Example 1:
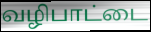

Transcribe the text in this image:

வழிபாட்டை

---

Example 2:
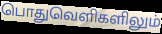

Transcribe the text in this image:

பொதுவெளிகளிலும்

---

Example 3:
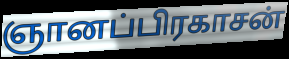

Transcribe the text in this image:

ஞானப்பிரகாசன்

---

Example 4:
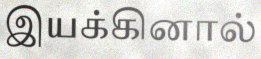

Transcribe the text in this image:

இயக்கினால்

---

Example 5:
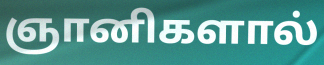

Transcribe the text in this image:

ஞானிகளால்